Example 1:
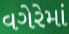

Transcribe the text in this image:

વગેરેમાં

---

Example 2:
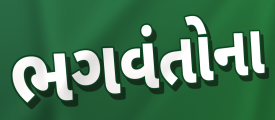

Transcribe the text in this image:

ભગવંતોના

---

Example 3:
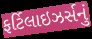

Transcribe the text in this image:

ફર્ટિલાઇઝર્સનું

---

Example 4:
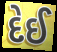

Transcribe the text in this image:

દેઈ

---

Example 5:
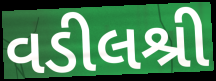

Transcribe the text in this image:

વડીલશ્રી